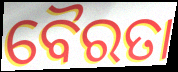
ବୈରତା